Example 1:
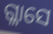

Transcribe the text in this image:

ଗ୍ଳାସେ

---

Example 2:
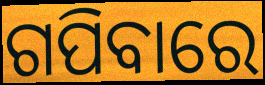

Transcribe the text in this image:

ଗପିବାରେ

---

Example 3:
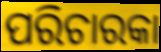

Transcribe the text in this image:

ପରିଚାରକା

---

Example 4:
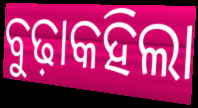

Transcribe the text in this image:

ବୁଢ଼ାକହିଲା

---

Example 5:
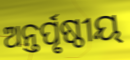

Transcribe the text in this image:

ଅନ୍ତର୍ପୃଷ୍ଠୀୟ